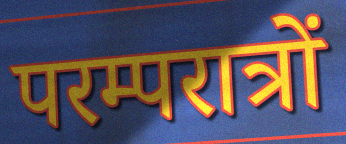
परम्परात्रों